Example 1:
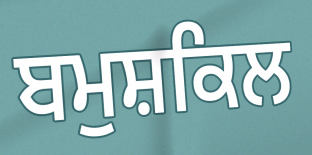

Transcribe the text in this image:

ਬਮੁਸ਼ਕਿਲ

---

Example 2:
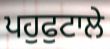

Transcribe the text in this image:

ਪਹੁਫੁਟਾਲੇ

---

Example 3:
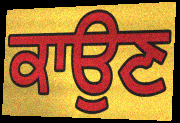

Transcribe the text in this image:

ਕਾਉਣ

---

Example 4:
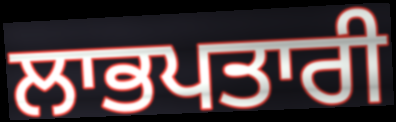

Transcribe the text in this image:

ਲਾਭਪਤਾਰੀ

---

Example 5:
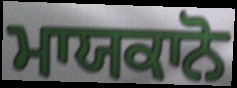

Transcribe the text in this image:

ਮਾਯਕਾਨੋ